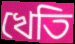
খেতি